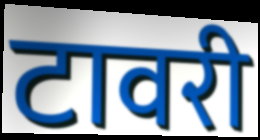
टावरी